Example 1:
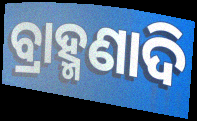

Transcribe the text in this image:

ବ୍ରାହ୍ମଣାଦି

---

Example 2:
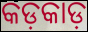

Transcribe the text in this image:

କଡ଼କାଡ଼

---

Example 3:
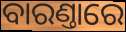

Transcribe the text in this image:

ବାରଣ୍ତାରେ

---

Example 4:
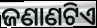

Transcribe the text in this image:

ଜଣାଣଟିଏ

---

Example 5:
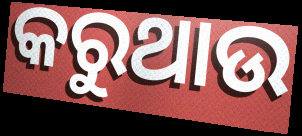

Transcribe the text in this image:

କରୁଥାଉ